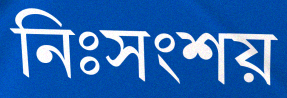
নিঃসংশয়